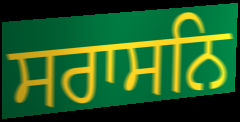
ਸਰਾਸਨਿ